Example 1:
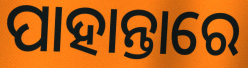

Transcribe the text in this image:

ପାହାନ୍ତାରେ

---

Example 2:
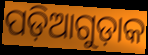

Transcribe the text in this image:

ପଡ଼ିଆଗୁଡ଼ାକ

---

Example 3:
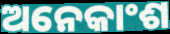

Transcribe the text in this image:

ଅନେକାଂଶ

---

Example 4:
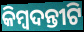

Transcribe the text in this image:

କିମ୍ୱଦନ୍ତୀଟି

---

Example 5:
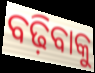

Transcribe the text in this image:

ବଢ଼ିବାକୁ